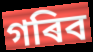
গৰিব